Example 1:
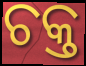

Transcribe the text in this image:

ଚକ୍ତ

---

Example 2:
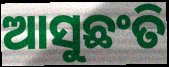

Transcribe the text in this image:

ଆସୁଛଂତି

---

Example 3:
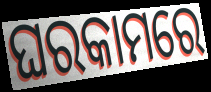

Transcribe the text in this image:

ଘରକାମରେ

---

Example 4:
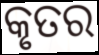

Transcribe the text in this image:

କୃତର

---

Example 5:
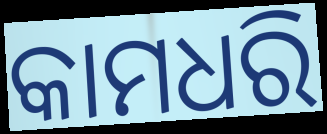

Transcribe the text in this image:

କାମଧରି